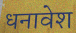
धनावेश